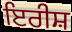
ਇਰੀਸ਼